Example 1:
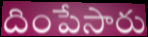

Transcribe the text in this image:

దింపేసారు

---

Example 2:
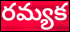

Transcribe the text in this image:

రమ్యక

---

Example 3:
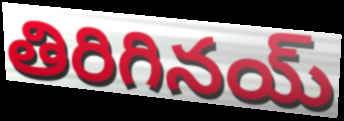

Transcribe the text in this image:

తిరిగినయ్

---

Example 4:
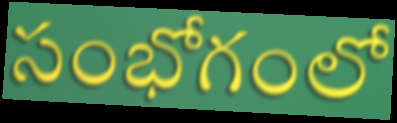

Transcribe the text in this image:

సంభోగంలో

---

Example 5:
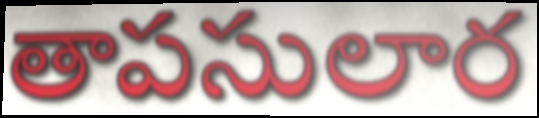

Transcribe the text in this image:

తాపసులార